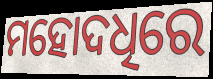
ମହୋଦଧିରେ